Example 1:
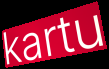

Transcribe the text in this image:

kartu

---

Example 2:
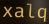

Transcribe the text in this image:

xalq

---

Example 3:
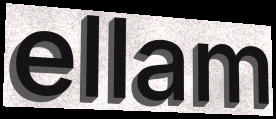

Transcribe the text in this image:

ellam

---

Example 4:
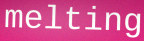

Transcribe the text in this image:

melting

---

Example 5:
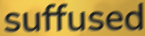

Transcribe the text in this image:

suffused